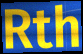
Rth